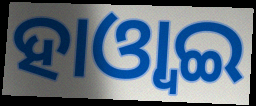
ହାଓ୍ୱାଇ